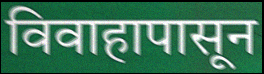
विवाहापासून